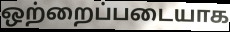
ஒற்றைப்படையாக